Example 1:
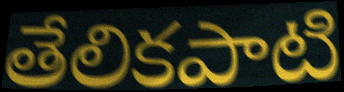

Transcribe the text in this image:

తేలికపాటి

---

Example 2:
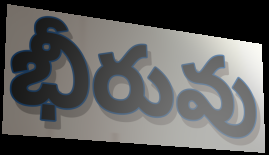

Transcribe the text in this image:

భీరువు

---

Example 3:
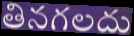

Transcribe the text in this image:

తినగలదు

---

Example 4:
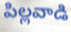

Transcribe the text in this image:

పిల్లవాడి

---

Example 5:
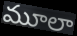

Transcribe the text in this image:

మూలా